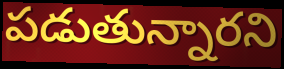
పడుతున్నారని